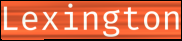
Lexington